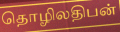
தொழிலதிபன்